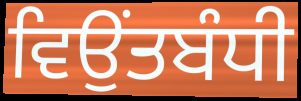
ਵਿਉਂਤਬੰਧੀ